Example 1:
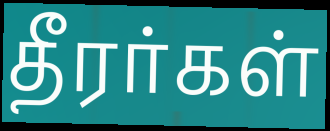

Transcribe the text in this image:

தீரர்கள்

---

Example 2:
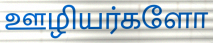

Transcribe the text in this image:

ஊழியர்களோ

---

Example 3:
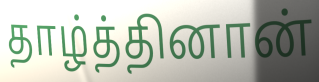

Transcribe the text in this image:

தாழ்த்தினான்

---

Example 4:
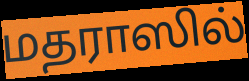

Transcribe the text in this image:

மதராஸில்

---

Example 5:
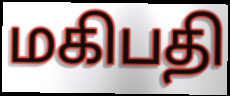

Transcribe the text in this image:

மகிபதி